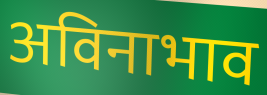
अविनाभाव